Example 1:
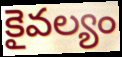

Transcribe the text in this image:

కైవల్యం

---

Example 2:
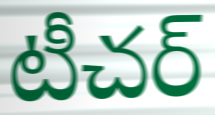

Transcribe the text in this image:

టీచర్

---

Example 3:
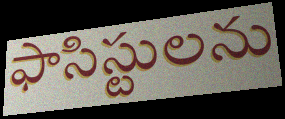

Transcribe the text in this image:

ఫాసిస్టులను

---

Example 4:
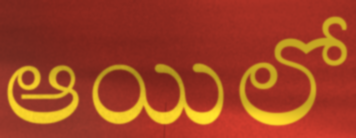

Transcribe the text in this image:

ఆయిలో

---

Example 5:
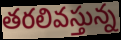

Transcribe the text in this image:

తరలివస్తున్న